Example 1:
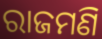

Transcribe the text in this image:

ରାଜମଣି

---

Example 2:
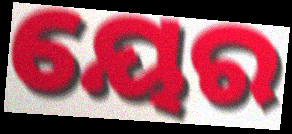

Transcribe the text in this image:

ୟେର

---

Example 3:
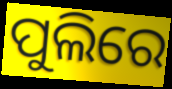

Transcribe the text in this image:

ପୁଲିରେ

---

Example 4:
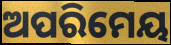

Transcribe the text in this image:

ଅପରିମେୟ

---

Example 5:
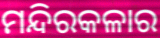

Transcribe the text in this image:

ମନ୍ଦିରକଳାର